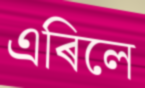
এৰিলে